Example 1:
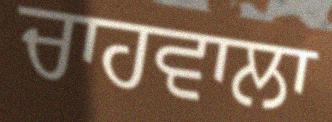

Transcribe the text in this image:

ਚਾਹਵਾਲਾ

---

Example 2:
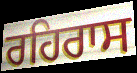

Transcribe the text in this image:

ਰਹਿਰਾਸ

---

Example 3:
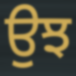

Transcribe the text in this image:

ਉਝ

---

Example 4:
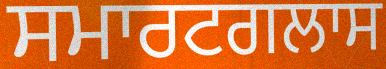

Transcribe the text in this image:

ਸਮਾਰਟਗਲਾਸ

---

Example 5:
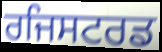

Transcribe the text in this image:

ਰਜਿਸਟਰਡ